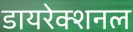
डायरेक्शनल